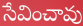
సేవించావు